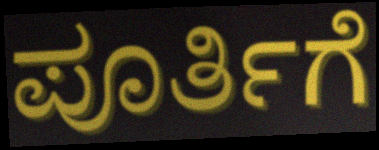
ಪೂರ್ತಿಗೆ